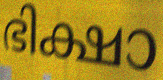
ഭിക്ഷാ